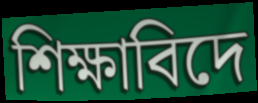
শিক্ষাবিদে